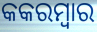
କକରମ୍ବାର